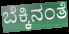
ಬೆಕ್ಕಿನಂತೆ